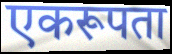
एकरूपता